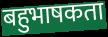
बहुभाषकता